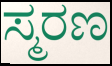
ಸ್ಮರಣ